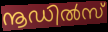
നൂഡിൽസ്